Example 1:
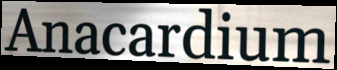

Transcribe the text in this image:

Anacardium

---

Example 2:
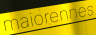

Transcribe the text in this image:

maiorennes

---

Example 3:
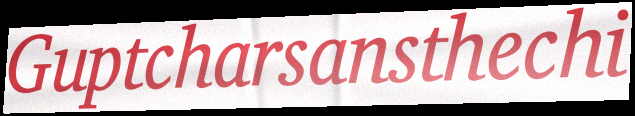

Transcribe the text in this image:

Guptcharsansthechi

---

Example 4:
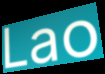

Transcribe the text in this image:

Lao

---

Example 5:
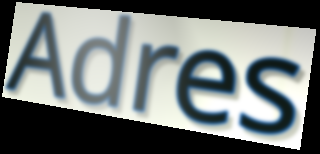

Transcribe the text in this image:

Adres